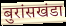
बुरांसखंडा